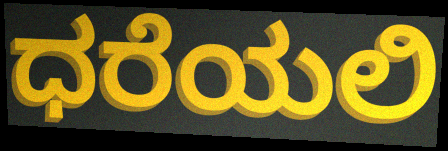
ಧರೆಯಲಿ